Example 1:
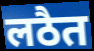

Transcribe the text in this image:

लठैत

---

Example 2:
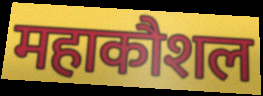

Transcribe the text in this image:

महाकौशल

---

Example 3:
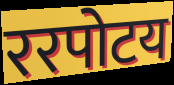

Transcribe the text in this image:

ररपोटय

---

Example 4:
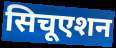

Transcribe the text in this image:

सिचूएशन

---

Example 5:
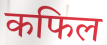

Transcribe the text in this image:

कफिल